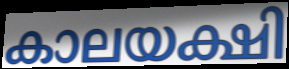
കാലയക്ഷി